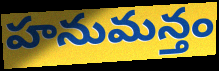
హనుమన్తం